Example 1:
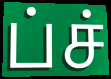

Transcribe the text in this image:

ப்ச்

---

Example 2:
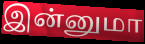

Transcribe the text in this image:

இன்னுமா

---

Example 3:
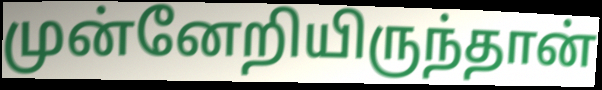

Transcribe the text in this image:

முன்னேறியிருந்தான்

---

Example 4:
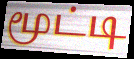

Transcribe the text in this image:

மூட்டி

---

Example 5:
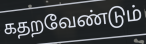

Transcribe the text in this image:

கதறவேண்டும்